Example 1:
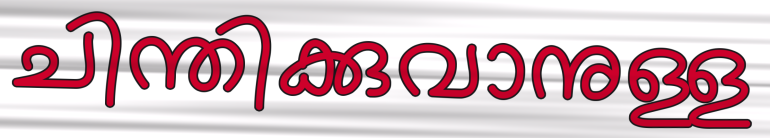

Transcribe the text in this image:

ചിന്തിക്കുവാനുള്ള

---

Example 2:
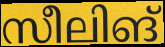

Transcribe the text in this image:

സീലിങ്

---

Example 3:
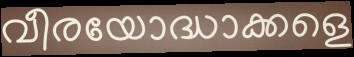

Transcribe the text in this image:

വീരയോദ്ധാക്കളെ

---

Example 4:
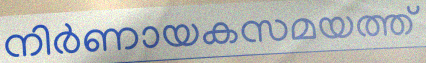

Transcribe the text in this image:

നിർണായകസമയത്ത്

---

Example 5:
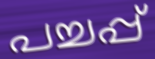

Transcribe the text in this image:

പച്ചപ്പ്